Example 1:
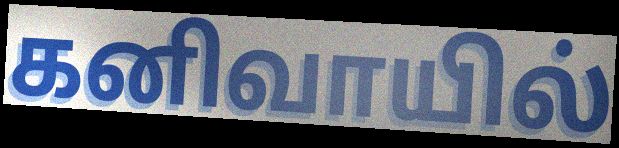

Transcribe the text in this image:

கனிவாயில்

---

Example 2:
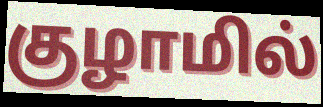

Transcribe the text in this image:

குழாமில்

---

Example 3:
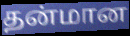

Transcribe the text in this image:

தன்மான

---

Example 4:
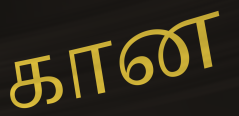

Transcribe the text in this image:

கான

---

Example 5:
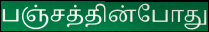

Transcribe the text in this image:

பஞ்சத்தின்போது